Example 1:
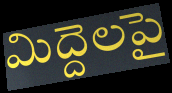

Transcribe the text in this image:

మిద్దెలపై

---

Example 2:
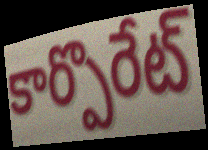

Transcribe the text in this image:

కార్పొరేట్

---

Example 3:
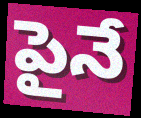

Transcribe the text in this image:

పైనే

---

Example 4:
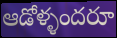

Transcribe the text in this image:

ఆడోళ్ళందరూ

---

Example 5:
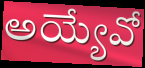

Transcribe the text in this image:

అయ్యేవో